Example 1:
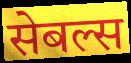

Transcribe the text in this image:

सेबल्स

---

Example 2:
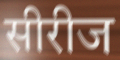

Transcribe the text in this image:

सीरीज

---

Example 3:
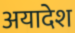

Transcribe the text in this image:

अयादेश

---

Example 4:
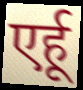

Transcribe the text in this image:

एर्हू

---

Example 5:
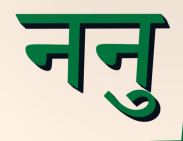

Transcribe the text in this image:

ननु